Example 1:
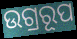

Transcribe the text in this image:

ଉଗ୍ରରୂପ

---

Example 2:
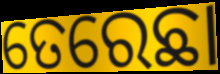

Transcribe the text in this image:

ତେରେଛା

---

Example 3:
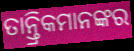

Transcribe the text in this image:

ତାନ୍ତ୍ରିକମାନଙ୍କର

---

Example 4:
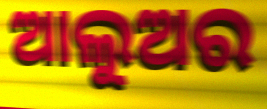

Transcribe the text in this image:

ଆଲୁଅର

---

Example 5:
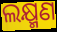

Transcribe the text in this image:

ଲକ୍ଷ୍ମଣ